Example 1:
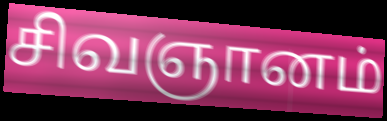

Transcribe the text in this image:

சிவஞானம்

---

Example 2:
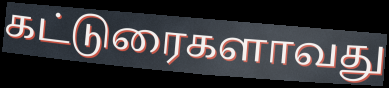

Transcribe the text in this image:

கட்டுரைகளாவது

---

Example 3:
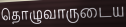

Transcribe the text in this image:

தொழுவாருடைய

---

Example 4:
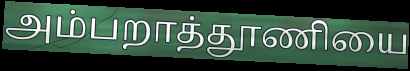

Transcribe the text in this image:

அம்பறாத்தூணியை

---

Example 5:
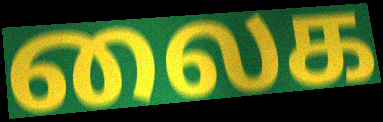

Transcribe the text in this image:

லைக